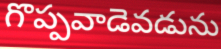
గొప్పవాడెవడును